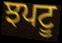
ਝਪਟੂ